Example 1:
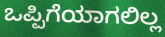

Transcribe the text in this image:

ಒಪ್ಪಿಗೆಯಾಗಲಿಲ್ಲ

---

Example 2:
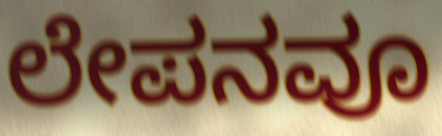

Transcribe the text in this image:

ಲೇಪನವೂ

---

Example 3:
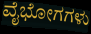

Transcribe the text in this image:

ವೈಭೋಗಗಳು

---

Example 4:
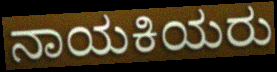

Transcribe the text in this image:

ನಾಯಕಿಯರು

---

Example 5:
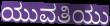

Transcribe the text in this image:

ಯುವತಿಯು